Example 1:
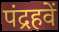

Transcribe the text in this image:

पंद्रहवें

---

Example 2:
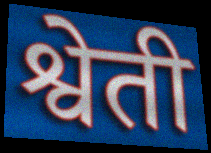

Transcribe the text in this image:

श्वेती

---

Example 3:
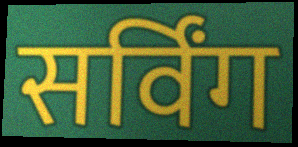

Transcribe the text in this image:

सर्विंग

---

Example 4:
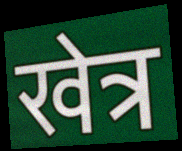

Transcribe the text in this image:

खेत्र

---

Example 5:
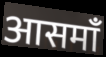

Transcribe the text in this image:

आसमाँ